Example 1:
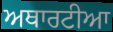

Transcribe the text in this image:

ਅਥਾਰਟੀਆ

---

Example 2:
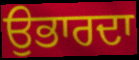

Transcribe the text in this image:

ਉਭਾਰਦਾ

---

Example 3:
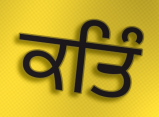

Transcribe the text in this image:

ਕਤਿੰ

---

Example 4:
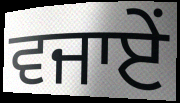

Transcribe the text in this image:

ਵਜਾਏਂ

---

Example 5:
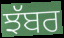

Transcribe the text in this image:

ਝੱਬਰ